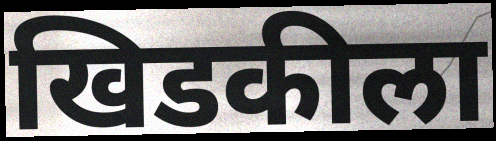
खिडकीला